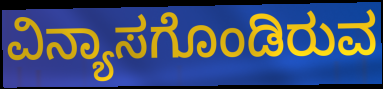
ವಿನ್ಯಾಸಗೊಂಡಿರುವ